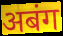
अबंग